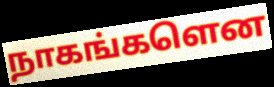
நாகங்களென